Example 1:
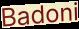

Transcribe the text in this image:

Badoni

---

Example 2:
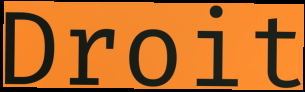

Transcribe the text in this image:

Droit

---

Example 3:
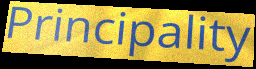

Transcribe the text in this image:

Principality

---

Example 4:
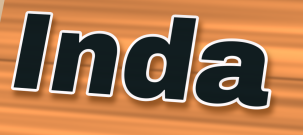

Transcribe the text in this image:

Inda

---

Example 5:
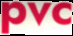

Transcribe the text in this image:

pvc